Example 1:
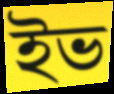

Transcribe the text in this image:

ইভ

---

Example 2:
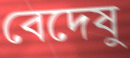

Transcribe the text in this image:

বেদেষু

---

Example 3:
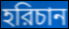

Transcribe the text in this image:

হরিচান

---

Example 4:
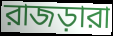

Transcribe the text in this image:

রাজড়ারা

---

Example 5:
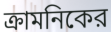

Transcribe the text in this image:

ক্রামনিকের